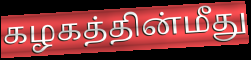
கழகத்தின்மீது